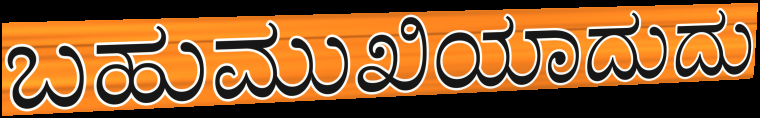
ಬಹುಮುಖಿಯಾದುದು